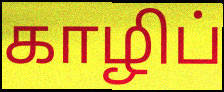
காழிப்